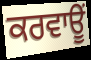
ਕਰਵਾਊਂ